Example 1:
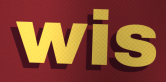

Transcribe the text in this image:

wis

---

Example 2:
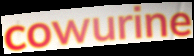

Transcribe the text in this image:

cowurine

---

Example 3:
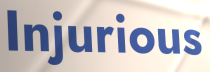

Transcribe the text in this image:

Injurious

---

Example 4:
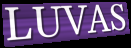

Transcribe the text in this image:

LUVAS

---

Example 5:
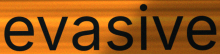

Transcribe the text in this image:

evasive